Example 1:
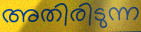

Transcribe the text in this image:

അതിരിടുന്ന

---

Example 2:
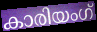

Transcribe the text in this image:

കാരിയംഗ്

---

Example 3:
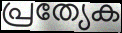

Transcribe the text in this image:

പ്രത്യേക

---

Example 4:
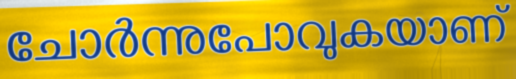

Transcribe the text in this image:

ചോർന്നുപോവുകയാണ്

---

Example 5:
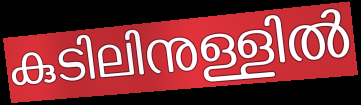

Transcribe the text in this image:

കുടിലിനുള്ളിൽ